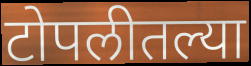
टोपलीतल्या